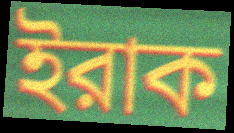
ইরাক